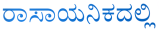
ರಾಸಾಯನಿಕದಲ್ಲಿ